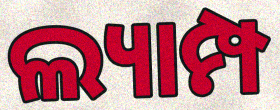
ଲ୍ୟାମ୍ପ